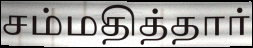
சம்மதித்தார்